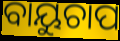
ବାୟୁଚାପ